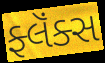
ફ્લૅંક્સ